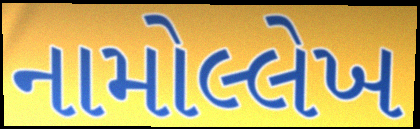
નામોલ્લેખ